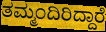
ತಮ್ಮಂದಿರಿದ್ದಾರೆ